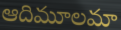
ఆదిమూలమా